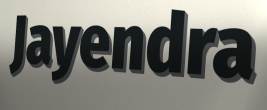
Jayendra